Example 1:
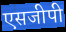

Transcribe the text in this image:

एसजीपी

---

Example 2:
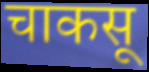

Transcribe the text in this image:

चाकसू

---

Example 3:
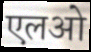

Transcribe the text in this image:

एलओ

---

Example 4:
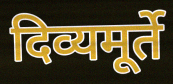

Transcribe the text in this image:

दिव्यमूर्ते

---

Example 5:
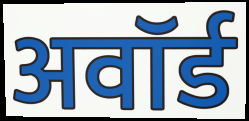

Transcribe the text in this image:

अवॉर्ड